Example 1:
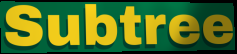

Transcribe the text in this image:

Subtree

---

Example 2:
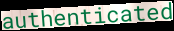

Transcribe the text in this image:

authenticated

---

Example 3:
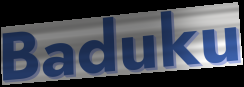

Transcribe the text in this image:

Baduku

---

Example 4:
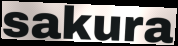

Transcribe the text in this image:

sakura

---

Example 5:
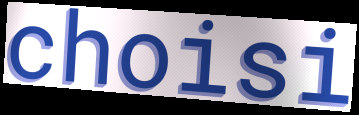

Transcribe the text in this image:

choisi